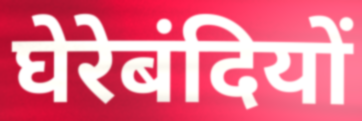
घेरेबंदियों